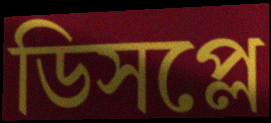
ডিসপ্লে